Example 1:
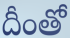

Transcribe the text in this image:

దీంతో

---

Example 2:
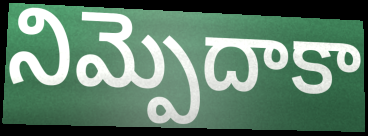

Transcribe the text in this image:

నిమ్పెదాకా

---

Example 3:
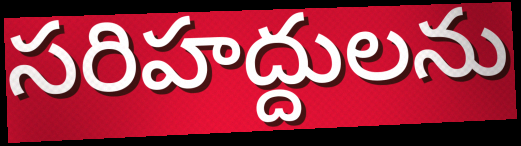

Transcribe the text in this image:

సరిహద్దులను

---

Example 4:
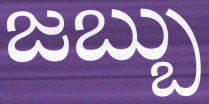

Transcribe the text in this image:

జబ్బు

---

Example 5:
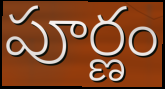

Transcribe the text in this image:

పూర్ణం